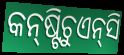
କନ୍‍ଷ୍ଟିଚୁଏନ୍‍ସି